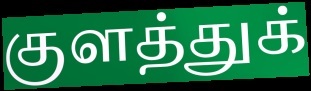
குளத்துக்